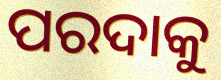
ପରଦାକୁ